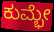
ಕುಮ್ಭೇ